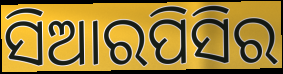
ସିଆରପିସିର